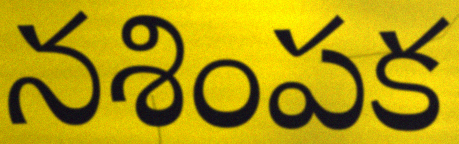
నశింపక